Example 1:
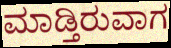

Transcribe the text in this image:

ಮಾಡ್ತಿರುವಾಗ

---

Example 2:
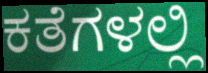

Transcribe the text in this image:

ಕತೆಗಳಲ್ಲಿ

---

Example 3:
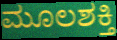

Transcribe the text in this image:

ಮೂಲಶಕ್ತಿ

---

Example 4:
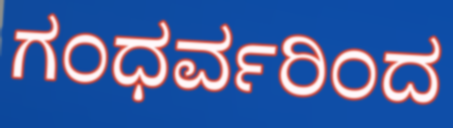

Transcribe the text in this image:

ಗಂಧರ್ವರಿಂದ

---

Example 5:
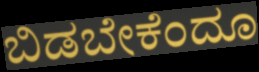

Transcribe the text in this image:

ಬಿಡಬೇಕೆಂದೂ